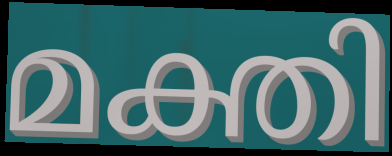
മക്തി